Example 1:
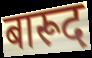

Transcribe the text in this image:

बारूद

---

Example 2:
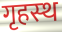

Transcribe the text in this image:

गृहस्‍थ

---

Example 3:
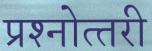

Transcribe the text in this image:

प्रश्‍नोत्‍तरी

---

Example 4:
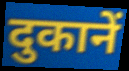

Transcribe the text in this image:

दुकानें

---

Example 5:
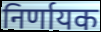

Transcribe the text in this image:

निर्णायक